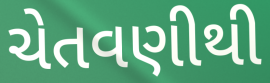
ચેતવણીથી